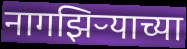
नागझिऱ्याच्या